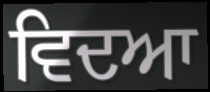
ਵਿਦਆ